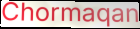
Chormaqan